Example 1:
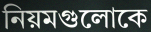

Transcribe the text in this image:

নিয়মগুলোকে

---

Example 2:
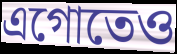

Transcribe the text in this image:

এগোতেও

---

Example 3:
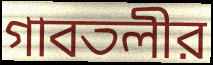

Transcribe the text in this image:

গাবতলীর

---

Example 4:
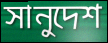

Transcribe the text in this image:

সানুদেশ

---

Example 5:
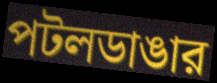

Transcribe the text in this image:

পটলডাঙার